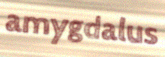
amygdalus